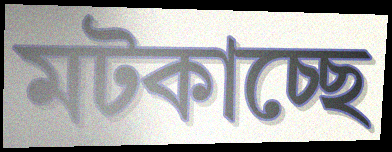
মটকাচ্ছে